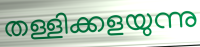
തള്ളിക്കളയുന്നു